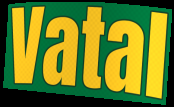
Vatal